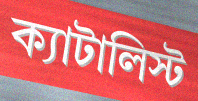
ক্যাটালিস্ট